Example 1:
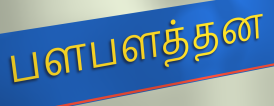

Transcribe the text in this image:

பளபளத்தன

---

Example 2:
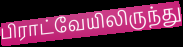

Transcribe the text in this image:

பிராட்வேயிலிருந்து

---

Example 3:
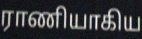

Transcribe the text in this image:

ராணியாகிய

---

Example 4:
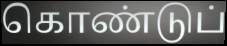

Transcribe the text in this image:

கொண்டுப்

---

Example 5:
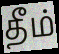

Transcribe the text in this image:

தீம்